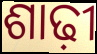
ଶାଢ଼ୀ